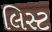
લિસ્ટ